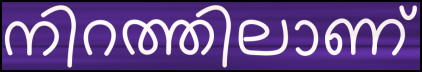
നിറത്തിലാണ്